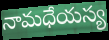
నామధేయస్య